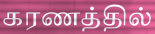
கரணத்தில்